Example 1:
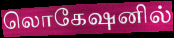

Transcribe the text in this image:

லொகேஷனில்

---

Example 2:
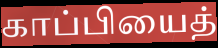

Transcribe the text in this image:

காப்பியைத்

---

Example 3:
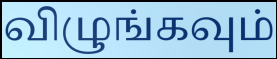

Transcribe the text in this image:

விழுங்கவும்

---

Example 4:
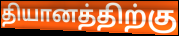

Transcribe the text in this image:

தியானத்திற்கு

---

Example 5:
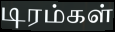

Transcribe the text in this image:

டிரம்கள்